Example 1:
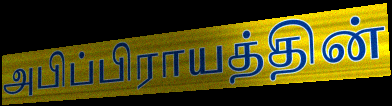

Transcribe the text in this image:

அபிப்பிராயத்தின்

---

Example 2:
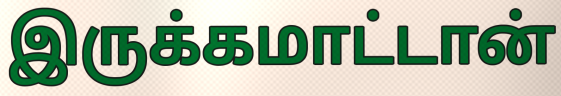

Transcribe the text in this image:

இருக்கமாட்டான்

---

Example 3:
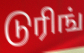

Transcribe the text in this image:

டுரிங்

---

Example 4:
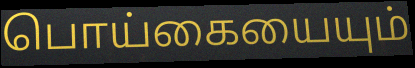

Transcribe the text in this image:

பொய்கையையும்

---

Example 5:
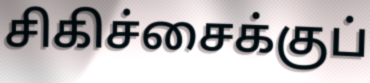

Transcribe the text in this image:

சிகிச்சைக்குப்